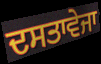
ਦਸਤਾਵੇਜਾ